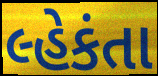
લ્હેકંતા